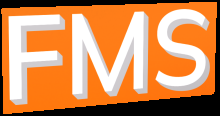
FMS